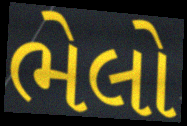
ભેલો